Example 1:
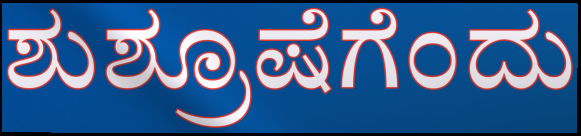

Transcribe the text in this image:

ಶುಶ್ರೂಷೆಗೆಂದು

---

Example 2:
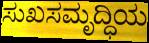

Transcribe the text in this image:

ಸುಖಸಮೃದ್ಧಿಯ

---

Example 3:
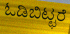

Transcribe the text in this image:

ಓಡಿಬಿಟ್ಟರೆ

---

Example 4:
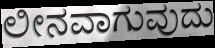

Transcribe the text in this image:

ಲೀನವಾಗುವುದು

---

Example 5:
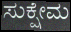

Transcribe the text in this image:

ಸುಕ್ಷೇಮ